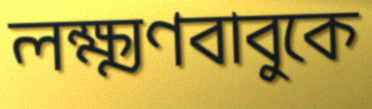
লক্ষ্মণবাবুকে